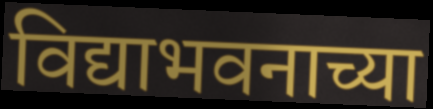
विद्याभवनाच्या